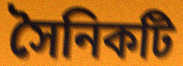
সৈনিকটি